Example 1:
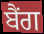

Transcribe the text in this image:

ਬੈਂਗ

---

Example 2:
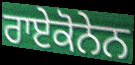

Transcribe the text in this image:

ਰਾਏਕੋਨੇਨ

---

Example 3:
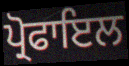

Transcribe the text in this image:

ਪ੍ਰੋਫਾਇਲ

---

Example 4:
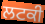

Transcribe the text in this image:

ਲਟਕੀ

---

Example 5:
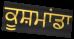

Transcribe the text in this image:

ਕੂਸ਼ਮਾਂਡਾ